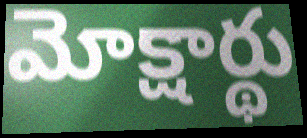
మోక్షార్థు